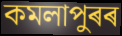
কমলাপুৰৰ